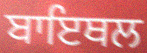
ਬਾਇਥਲ